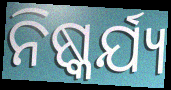
ନିଷ୍କର୍ଯ୍ୟ